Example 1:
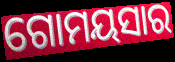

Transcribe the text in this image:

ଗୋମୟସାର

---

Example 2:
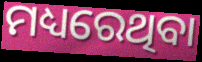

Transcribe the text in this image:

ମଧ୍ୟରେଥିବା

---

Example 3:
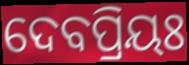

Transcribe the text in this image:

ଦେବପ୍ରିୟଃ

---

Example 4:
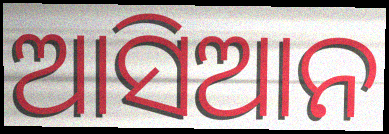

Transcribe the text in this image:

ଆସିଆନ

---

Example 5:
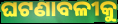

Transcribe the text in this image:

ଘଟଣାବଳୀକୁ